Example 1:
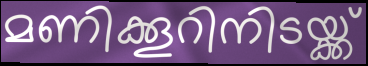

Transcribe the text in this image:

മണിക്കൂറിനിടയ്ക്ക്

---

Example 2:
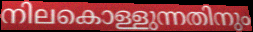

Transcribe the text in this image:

നിലകൊള്ളുന്നതിനും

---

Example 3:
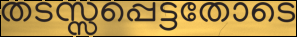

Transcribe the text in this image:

തടസ്സപ്പെട്ടതോടെ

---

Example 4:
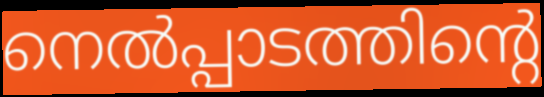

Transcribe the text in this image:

നെൽപ്പാടത്തിന്റെ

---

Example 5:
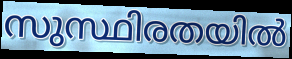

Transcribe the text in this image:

സുസ്ഥിരതയിൽ